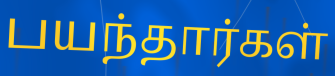
பயந்தார்கள்